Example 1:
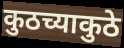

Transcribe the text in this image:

कुठच्याकुठे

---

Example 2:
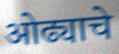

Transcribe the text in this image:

ओढ्याचे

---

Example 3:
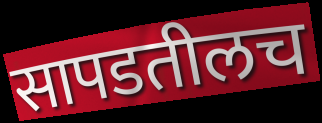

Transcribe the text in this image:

सापडतीलच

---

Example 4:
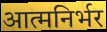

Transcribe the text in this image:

आत्मनिर्भर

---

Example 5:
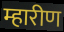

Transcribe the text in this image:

म्हारीण